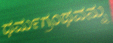
ಧರ್ಮಗ್ರಂಥವನ್ನು